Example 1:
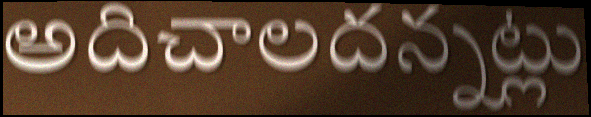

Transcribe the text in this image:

అదిచాలదన్నట్లు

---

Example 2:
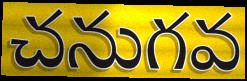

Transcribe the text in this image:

చనుగవ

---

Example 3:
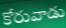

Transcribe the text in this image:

కోరువాడు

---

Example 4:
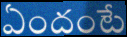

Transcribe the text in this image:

ఏందంటే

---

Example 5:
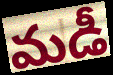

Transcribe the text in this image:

మడీ